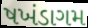
ષખંડાગમ